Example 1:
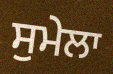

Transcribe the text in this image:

ਸੁਮੇਲਾ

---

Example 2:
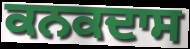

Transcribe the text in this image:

ਕਨਕਦਾਸ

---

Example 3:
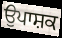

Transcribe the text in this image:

ਉਪਾਸ਼ਕ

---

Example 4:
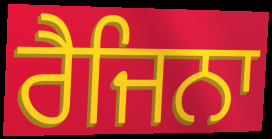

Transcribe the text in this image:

ਰੈਜਿਨਾ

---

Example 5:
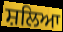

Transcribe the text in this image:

ਸ਼ਲਿਆ